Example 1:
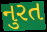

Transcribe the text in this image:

નુરત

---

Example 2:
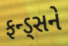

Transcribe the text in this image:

ફન્ડ્સને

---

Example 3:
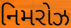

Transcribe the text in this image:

નિમરોઝ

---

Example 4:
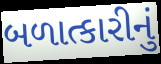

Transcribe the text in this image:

બળાત્કારીનું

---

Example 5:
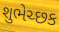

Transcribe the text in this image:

શુભેચ્છક